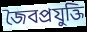
জৈবপ্রযুক্তি